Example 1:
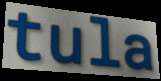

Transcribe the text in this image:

tula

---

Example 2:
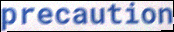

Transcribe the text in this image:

precaution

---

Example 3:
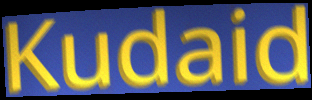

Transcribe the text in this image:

Kudaid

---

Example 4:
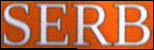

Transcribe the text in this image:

SERB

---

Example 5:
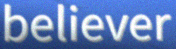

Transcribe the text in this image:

believer